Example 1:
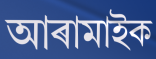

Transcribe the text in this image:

আৰামাইক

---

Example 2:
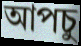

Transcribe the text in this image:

আপচু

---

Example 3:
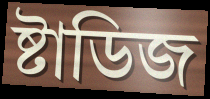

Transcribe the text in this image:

ষ্টাডিজ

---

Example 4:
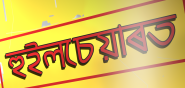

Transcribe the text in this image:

হুইলচেয়াৰত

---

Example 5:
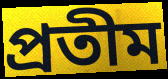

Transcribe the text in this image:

প্ৰতীম